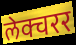
लेक्चरर